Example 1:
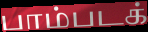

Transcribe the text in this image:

பாம்படக்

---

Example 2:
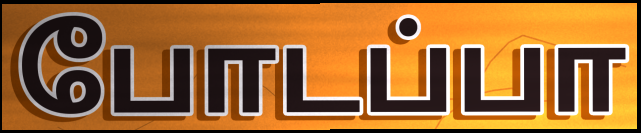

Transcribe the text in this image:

போடப்பா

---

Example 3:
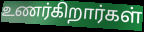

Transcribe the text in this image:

உணர்கிறார்கள்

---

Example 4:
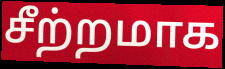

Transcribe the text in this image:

சீற்றமாக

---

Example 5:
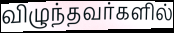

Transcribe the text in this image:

விழுந்தவர்களில்